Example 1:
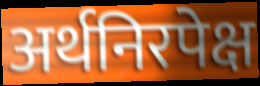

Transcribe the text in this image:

अर्थनिरपेक्ष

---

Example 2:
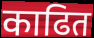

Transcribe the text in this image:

काढित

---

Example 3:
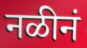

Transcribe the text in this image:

नळीनं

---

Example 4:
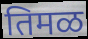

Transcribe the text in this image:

तिमळ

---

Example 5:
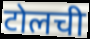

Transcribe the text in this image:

टोलची